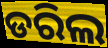
ଡରିଲ